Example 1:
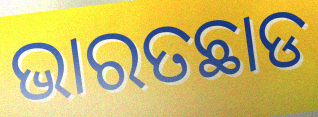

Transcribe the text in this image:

ଭାରତଛାଡ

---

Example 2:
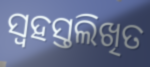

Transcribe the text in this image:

ସ୍ୱହସ୍ତଲିଖିତ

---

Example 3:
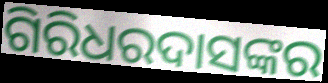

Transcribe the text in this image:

ଗିରିଧରଦାସଙ୍କର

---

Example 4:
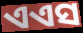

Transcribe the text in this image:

ଏଏସ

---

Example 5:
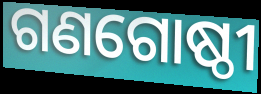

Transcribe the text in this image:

ଗଣଗୋଷ୍ଠୀ